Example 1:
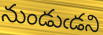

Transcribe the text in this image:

నుండుఁడని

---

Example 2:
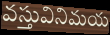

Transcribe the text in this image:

వస్తువినిమయ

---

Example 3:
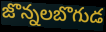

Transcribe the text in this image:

జొన్నలబొగుడ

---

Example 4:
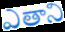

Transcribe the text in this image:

ఎతాని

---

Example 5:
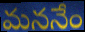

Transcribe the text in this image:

మననేం